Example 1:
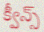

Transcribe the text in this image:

క్వీన్స్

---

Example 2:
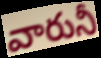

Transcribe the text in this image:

వారునీ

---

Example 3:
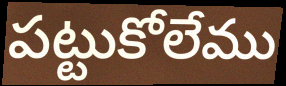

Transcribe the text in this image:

పట్టుకోలేము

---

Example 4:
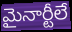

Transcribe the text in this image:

మైనార్టీలే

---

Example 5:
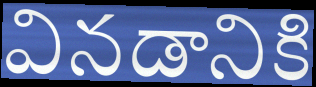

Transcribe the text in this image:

వినడానికి